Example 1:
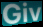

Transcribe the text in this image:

Giv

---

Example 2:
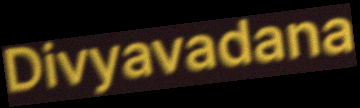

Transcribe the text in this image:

Divyavadana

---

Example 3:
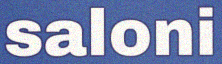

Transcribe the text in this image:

saloni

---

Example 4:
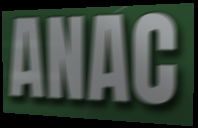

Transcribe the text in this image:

ANAC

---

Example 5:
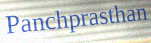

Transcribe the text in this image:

Panchprasthan